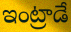
ఇంట్రాడే